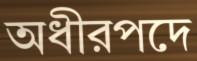
অধীরপদে